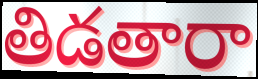
తిడతారా